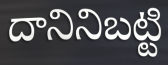
దానినిబట్టి